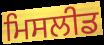
ਮਿਸਲੀਡ